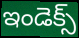
ఇండెక్స్